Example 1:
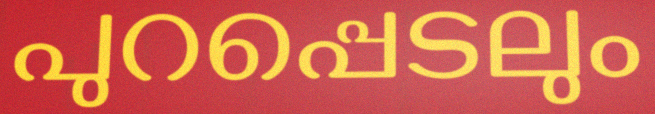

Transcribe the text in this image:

പുറപ്പെടലും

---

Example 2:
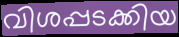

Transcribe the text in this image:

വിശപ്പടക്കിയ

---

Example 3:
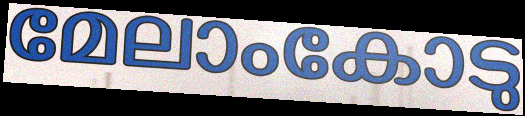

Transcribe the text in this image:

മേലാംകോടു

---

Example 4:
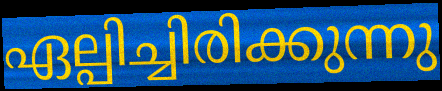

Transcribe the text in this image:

ഏല്പിച്ചിരിക്കുന്നു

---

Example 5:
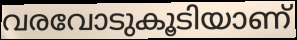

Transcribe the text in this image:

വരവോടുകൂടിയാണ്